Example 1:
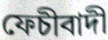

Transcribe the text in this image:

ফেচীবাদী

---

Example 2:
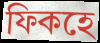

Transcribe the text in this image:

ফিকহে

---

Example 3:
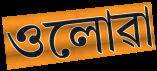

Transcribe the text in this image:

ওলোৱা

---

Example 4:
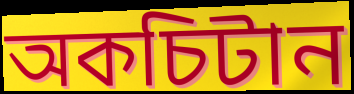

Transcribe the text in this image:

অকচিটান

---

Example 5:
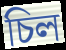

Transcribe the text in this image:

চিল